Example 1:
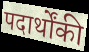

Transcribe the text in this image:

पदार्थोंकी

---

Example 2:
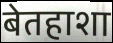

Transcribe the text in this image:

बेतहाशा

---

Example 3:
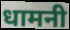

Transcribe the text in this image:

धामनी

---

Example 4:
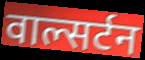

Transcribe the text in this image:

वाल्सर्टन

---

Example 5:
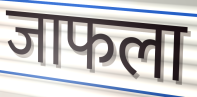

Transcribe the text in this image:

जाफला